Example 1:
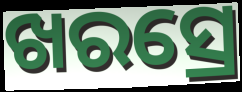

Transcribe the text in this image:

ଖରସ୍ରେ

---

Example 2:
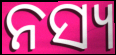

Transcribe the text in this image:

ନସ୍ୟ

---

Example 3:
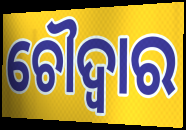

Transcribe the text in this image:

ଚୌଦ୍ଵାର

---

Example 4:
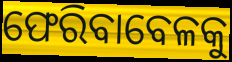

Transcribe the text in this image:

ଫେରିବାବେଳକୁ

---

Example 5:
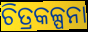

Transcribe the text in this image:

ଚିତ୍ରକଳ୍ପନା